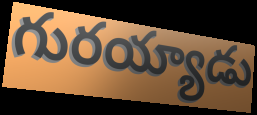
గురయ్యాడు